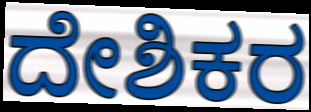
ದೇಶಿಕರ